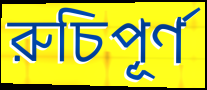
ৰুচিপূৰ্ণ